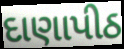
દાણાપીઠ